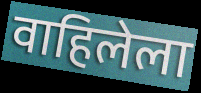
वाहिलेला